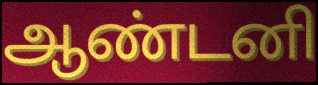
ஆண்டனி